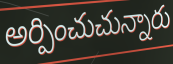
అర్పించుచున్నారు